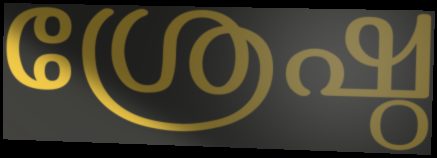
ശ്രേഷ്ഠ